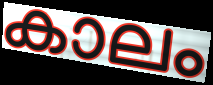
കാലം